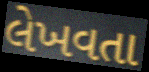
લેખવતા